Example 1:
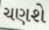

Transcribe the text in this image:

ચણશે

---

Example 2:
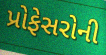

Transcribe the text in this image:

પ્રોફેસરોની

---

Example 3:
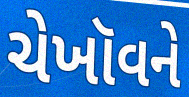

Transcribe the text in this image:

ચેખૉવને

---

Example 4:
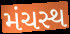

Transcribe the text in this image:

મંચસ્થ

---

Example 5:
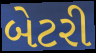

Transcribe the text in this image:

બેટરી